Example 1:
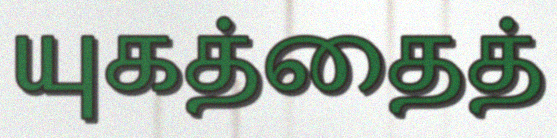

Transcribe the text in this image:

யுகத்தைத்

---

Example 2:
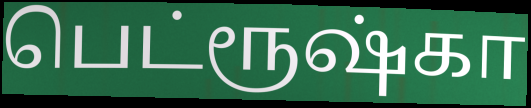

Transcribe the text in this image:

பெட்ரூஷ்கா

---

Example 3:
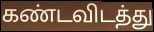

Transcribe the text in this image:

கண்டவிடத்து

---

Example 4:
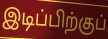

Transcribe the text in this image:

இடிப்பிற்குப்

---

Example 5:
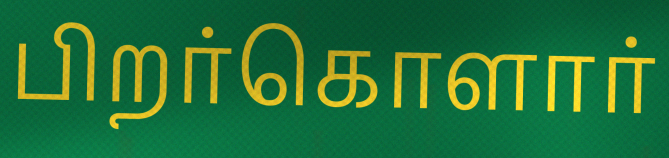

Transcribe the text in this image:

பிறர்கொளார்